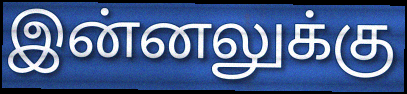
இன்னலுக்கு